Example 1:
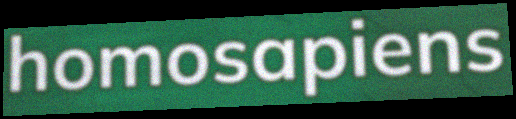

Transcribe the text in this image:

homosapiens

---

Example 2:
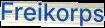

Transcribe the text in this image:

Freikorps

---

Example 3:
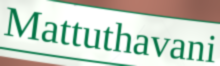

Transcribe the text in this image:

Mattuthavani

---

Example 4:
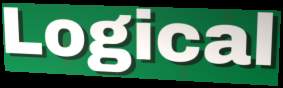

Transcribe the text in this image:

Logical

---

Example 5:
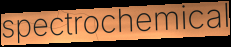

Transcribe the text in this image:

spectrochemical